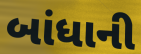
બાંધાની